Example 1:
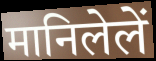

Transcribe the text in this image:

मानिलेलें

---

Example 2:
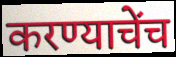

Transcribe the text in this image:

करण्याचेंच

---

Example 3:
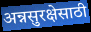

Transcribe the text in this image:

अन्नसुरक्षेसाठी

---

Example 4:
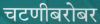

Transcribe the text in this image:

चटणीबरोबर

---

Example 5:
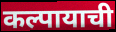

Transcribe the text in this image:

कल्पायाची